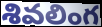
శివలింగ